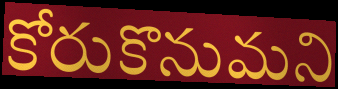
కోరుకొనుమని